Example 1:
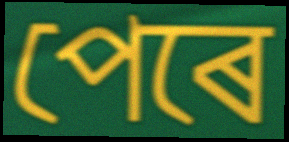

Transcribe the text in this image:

পেৰে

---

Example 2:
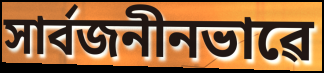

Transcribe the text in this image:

সাৰ্বজনীনভাৱে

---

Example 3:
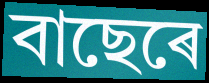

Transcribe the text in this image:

বাছেৰে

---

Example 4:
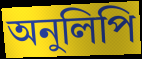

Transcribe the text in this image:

অনুলিপি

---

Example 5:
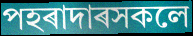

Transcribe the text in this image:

পহৰাদাৰসকলে